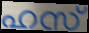
ഹസ്